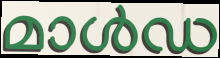
മാൾഡ